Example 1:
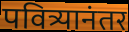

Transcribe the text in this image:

पवित्र्यानंतर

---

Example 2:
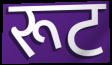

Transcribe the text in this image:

रूट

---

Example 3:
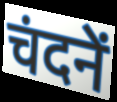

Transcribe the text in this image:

चंदनें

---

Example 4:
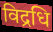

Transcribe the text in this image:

विद्रधि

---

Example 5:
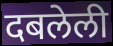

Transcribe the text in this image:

दबलेली